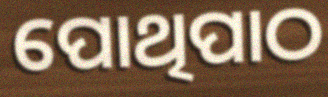
ପୋଥିପାଠ